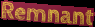
Remnant